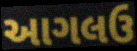
આગલઉ